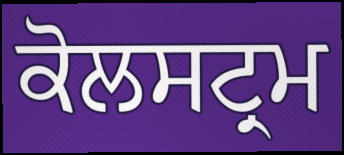
ਕੋਲਸਟ੍ਰਮ